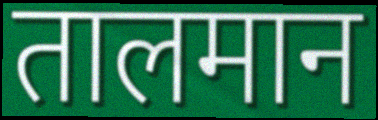
तालमान